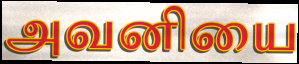
அவனியை